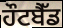
ਹੌਟਬੈੱਡ